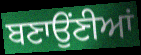
ਬਣਾਉਂਣੀਆਂ